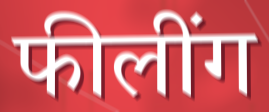
फीलींग